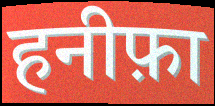
हनीफ़ा